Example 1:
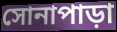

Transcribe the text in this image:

সোনাপাড়া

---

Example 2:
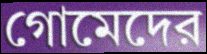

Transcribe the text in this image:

গোমেদের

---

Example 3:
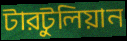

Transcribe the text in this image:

টারটুলিয়ান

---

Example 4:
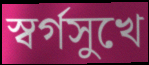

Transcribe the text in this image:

স্বর্গসুখে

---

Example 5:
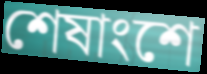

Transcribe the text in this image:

শেষাংশে